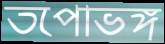
তপোভঙ্গ